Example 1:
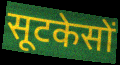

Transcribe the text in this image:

सूटकेसों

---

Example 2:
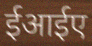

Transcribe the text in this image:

ईआईए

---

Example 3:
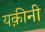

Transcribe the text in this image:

यक़ीनी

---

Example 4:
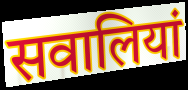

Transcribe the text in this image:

सवालियां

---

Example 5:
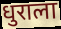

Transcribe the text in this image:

धुराला